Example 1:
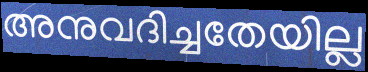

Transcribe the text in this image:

അനുവദിച്ചതേയില്ല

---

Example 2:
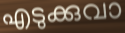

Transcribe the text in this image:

എടുക്കുവാ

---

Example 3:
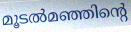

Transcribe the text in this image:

മൂടൽമഞ്ഞിന്റെ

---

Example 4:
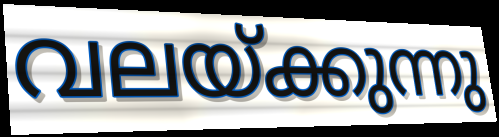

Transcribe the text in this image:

വലയ്ക്കുന്നു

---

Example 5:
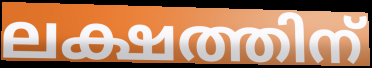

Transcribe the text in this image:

ലക്ഷത്തിന്